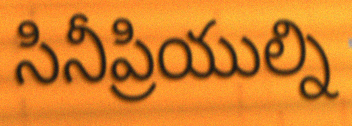
సినీప్రియుల్ని